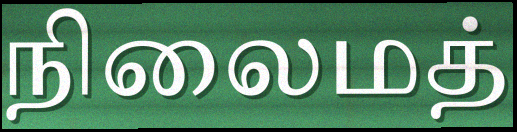
நிலைமத்